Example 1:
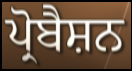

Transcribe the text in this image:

ਪ੍ਰੋਬੈਸ਼ਨ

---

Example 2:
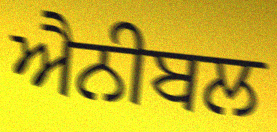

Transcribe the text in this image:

ਐਨੀਬਲ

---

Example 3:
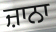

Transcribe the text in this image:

ਜ਼ਾਨਾ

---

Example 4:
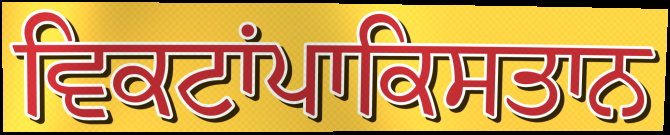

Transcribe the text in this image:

ਵਿਕਟਾਂਪਾਕਿਸਤਾਨ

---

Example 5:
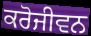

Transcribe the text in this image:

ਕਰੋਜੀਵਨ